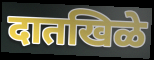
दातखिळे